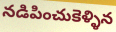
నడిపించుకెళ్ళిన